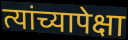
त्यांच्यापेक्षा